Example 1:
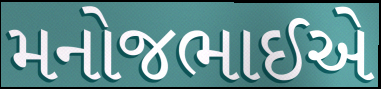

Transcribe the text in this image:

મનોજભાઈએ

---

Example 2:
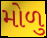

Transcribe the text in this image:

મોળુ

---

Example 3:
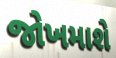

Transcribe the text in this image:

જોખમાશે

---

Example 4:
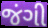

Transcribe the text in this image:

જંગી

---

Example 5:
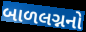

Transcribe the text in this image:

બાળલગ્નનો